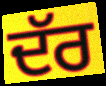
ਦੱਰ